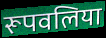
रूपवलिया